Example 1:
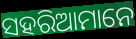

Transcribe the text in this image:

ସହରିଆମାନେ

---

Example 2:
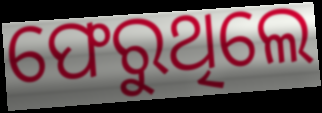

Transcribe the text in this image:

ଫେରୁଥିଲେ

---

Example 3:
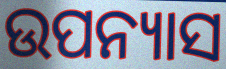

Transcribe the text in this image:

ଉପନ୍ୟାସ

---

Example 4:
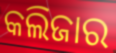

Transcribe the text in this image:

କଲିଜାର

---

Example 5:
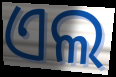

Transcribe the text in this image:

ଏଲ